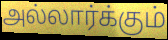
அல்லார்க்கும்